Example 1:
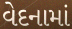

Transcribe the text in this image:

વેદનામાં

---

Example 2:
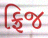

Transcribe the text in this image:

ફ્રિજ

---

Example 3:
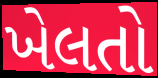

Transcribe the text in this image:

ખેલતો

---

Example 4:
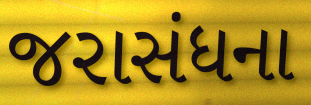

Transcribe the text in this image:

જરાસંધના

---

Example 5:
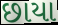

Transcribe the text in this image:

છાયા